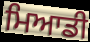
ਮਿਆਡੀ